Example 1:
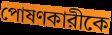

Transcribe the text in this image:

পোষণকারীকে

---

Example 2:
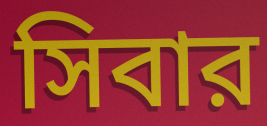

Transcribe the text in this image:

সিবার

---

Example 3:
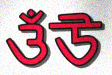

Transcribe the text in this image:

ওঁউ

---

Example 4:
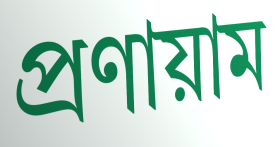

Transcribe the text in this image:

প্রণায়াম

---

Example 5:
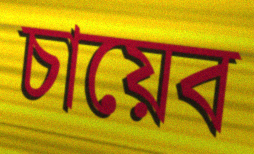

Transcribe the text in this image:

চায়েব